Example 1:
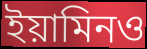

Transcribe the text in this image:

ইয়ামিনও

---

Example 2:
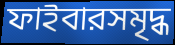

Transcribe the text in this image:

ফাইবারসমৃদ্ধ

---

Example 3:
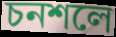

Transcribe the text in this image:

চনশলে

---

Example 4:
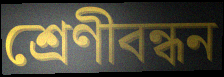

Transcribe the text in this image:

শ্রেণীবন্ধন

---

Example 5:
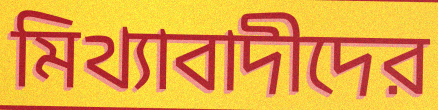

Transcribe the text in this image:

মিথ্যাবাদীদের